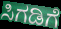
ಸಿಗಡಿಗೆ